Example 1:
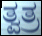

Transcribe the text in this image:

ತ್ವತ್ರ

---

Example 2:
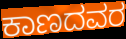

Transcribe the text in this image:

ಕಾಣದವರ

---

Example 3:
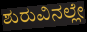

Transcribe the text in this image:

ಶುರುವಿನಲ್ಲೇ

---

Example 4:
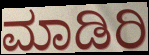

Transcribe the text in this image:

ಮಾಡಿರಿ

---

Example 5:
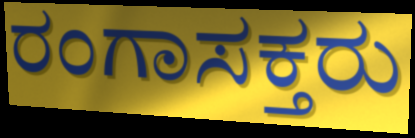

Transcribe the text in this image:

ರಂಗಾಸಕ್ತರು